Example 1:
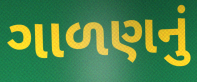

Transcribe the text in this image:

ગાળણનું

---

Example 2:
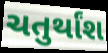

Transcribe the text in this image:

ચતુર્થાંશ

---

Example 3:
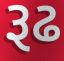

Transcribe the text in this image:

રૂઢ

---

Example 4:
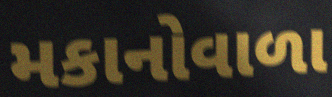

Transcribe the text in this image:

મકાનોવાળા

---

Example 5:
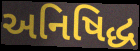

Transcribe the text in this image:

અનિષિદ્ધ